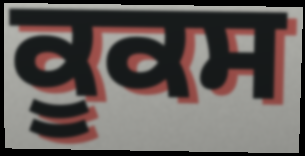
ਕੂਕਸ